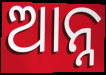
ଆନ୍ନ